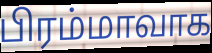
பிரம்மாவாக